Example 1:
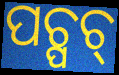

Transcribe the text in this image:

ପଚ୍ପଚ୍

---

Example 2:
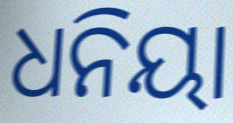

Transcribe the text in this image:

ଧନିୟା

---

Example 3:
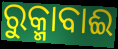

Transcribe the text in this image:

ରୁକ୍ମାବାଈ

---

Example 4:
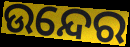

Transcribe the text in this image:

ଉନ୍ଦେର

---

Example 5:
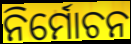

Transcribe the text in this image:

ନିର୍ମୋଚନ